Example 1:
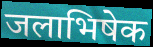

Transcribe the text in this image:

जलाभिषेक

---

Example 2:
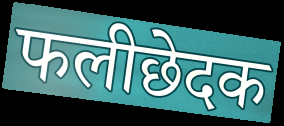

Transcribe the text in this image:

फलीछेदक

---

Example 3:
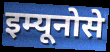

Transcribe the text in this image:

इम्यूनोसे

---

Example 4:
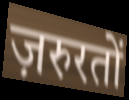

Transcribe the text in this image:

ज़रुरतों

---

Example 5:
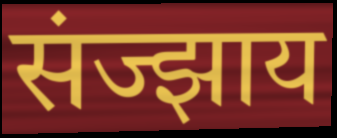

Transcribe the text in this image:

संज्झाय